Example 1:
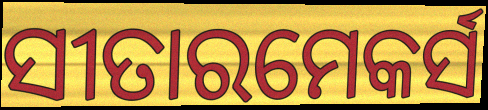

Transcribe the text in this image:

ସୀତାରମେକର୍ସ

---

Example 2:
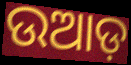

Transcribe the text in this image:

ଉଆଡ଼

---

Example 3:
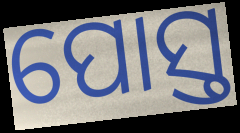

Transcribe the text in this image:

ପୋସ୍ତ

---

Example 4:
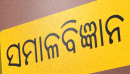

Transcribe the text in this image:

ସମାଳବିଜ୍ଞାନ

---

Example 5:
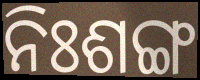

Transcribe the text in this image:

ନିଃଶଙ୍ଗ